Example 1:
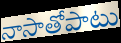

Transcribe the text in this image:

నాసాతోపాటు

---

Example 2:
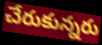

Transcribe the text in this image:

చేరుకున్నరు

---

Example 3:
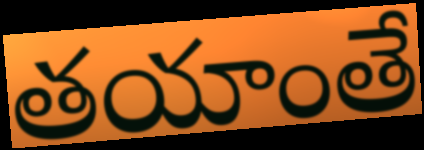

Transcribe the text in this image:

తయాంతే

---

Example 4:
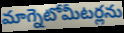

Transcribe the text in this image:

మాగ్నెటోమీటర్లను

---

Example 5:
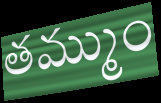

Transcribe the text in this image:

తమ్ముం